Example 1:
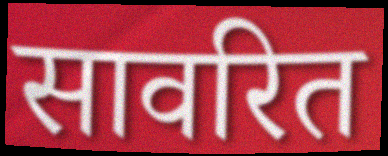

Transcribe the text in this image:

सावरित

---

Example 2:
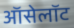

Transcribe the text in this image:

ऑसेलॉट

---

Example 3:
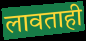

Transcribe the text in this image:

लावताही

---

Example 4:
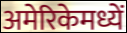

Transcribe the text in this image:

अमेरिकेमध्यें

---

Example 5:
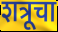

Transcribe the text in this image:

शत्रूचा